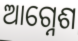
ଆଗ୍ନେଶ